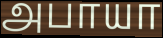
அபாயா